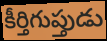
కీర్తిగుప్తుడు